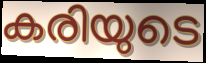
കരിയുടെ